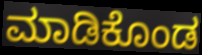
ಮಾಡಿಕೊಂಡ